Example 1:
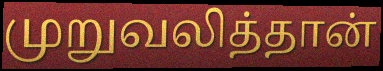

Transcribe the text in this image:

முறுவலித்தான்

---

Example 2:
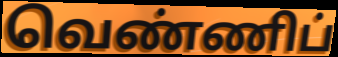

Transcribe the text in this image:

வெண்ணிப்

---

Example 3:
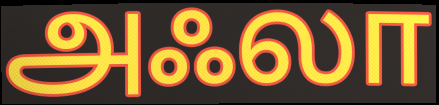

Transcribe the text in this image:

அஃலா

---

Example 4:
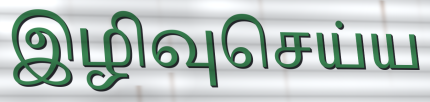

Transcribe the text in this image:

இழிவுசெய்ய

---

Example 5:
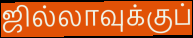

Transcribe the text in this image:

ஜில்லாவுக்குப்